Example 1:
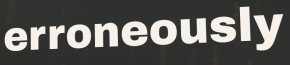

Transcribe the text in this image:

erroneously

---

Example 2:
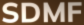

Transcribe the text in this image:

SDMF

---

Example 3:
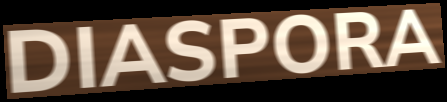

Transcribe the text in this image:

DIASPORA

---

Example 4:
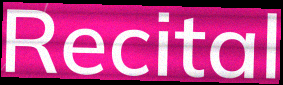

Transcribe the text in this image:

Recital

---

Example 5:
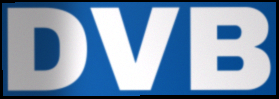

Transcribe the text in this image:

DVB